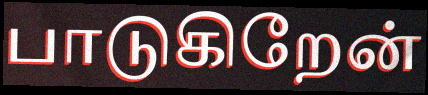
பாடுகிறேன்